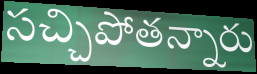
సచ్చిపోతన్నారు